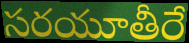
సరయూతీరే